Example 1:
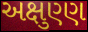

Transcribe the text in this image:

અક્ષુણ્ણ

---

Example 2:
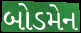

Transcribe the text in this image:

બોડમેન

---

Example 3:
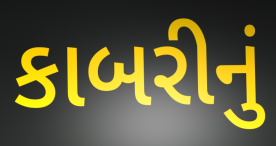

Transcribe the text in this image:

કાબરીનું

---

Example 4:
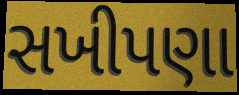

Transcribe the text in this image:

સખીપણા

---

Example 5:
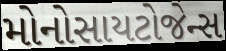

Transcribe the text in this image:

મોનોસાયટોજેન્સ